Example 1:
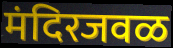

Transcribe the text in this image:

मंदिरजवळ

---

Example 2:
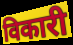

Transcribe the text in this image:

विकारी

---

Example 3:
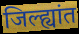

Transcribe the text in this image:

जिल्ह्यांत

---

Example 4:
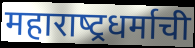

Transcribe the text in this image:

महाराष्ट्रधर्माची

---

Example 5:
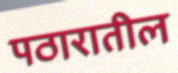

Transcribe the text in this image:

पठारातील